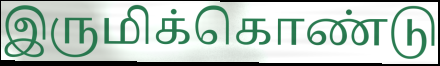
இருமிக்கொண்டு